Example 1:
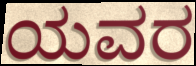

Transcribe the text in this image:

ಯವರ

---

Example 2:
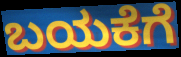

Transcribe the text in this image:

ಬಯಕೆಗೆ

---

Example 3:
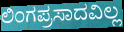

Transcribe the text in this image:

ಲಿಂಗಪ್ರಸಾದವಿಲ್ಲ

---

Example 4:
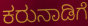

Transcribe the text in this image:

ಕರುನಾಡಿಗೆ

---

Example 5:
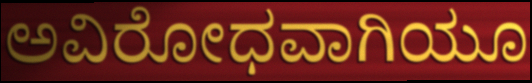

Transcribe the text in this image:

ಅವಿರೋಧವಾಗಿಯೂ